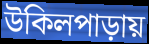
উকিলপাড়ায়